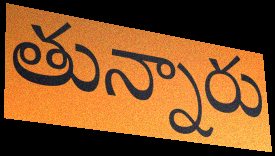
తున్నారు